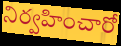
నిర్వహించారో